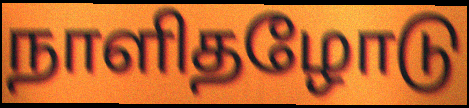
நாளிதழோடு